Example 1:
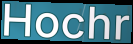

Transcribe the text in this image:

Hochr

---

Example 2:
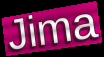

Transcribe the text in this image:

Jima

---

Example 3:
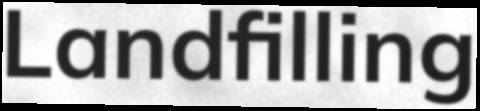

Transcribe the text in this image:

Landfilling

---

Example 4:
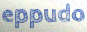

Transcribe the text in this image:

eppudo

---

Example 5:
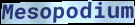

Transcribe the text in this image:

Mesopodium